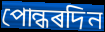
পোন্ধৰদিন